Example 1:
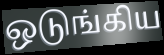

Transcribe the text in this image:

ஒடுங்கிய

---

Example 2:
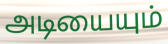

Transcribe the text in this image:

அடியையும்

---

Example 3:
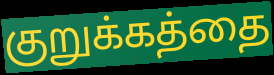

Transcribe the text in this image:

குறுக்கத்தை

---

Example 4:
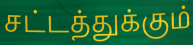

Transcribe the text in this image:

சட்டத்துக்கும்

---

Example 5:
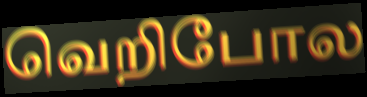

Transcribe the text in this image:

வெறிபோல